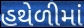
હથેળીમાં